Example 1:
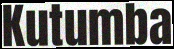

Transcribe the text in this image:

Kutumba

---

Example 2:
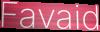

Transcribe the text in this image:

Favaid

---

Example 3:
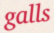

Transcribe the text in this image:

galls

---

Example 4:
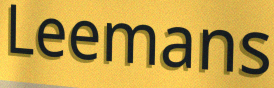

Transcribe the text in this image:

Leemans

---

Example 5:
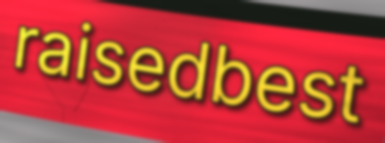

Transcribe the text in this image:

raisedbest